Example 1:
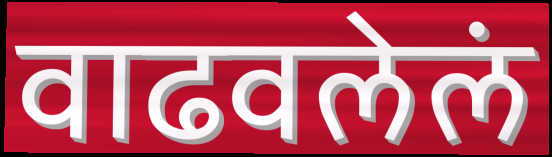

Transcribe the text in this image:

वाढवलेलं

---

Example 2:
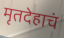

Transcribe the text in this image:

मृतदेहाचं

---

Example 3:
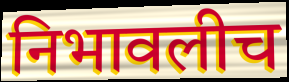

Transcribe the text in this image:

निभावलीच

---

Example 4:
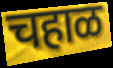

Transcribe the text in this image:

चहाळ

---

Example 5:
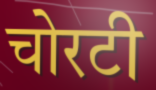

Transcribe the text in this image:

चोरटी